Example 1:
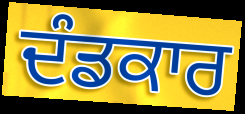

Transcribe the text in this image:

ਦੰਡਕਾਰ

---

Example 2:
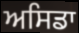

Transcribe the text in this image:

ਅਸਿਡਾ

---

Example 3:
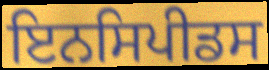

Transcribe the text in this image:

ਇਨਸਿਪੀਡਸ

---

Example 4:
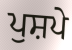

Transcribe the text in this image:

ਪੁਸ਼ਪੇ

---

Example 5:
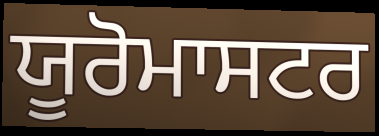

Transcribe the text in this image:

ਯੂਰੋਮਾਸਟਰ